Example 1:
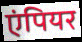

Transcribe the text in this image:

एंपियर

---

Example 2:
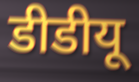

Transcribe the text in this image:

डीडीयू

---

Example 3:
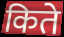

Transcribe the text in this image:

किते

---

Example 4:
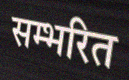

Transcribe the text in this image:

सम्भरित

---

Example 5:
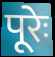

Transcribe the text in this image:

पूरेः